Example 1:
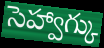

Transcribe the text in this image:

సెహ్వాగ్కు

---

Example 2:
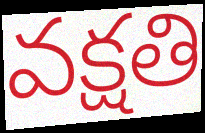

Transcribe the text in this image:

వక్షతి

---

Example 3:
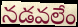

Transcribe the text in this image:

నడవలేం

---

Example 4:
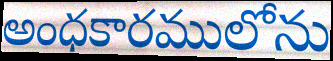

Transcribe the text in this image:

అంధకారములోను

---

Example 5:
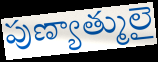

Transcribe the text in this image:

పుణ్యాత్ములై